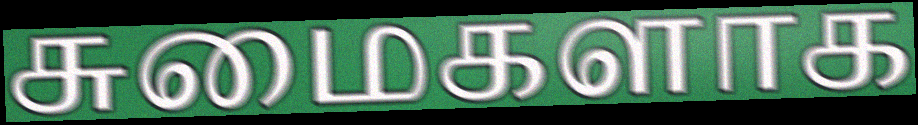
சுமைகளாக